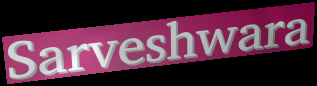
Sarveshwara